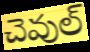
చెవుల్